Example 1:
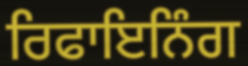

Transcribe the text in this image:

ਰਿਫਾਇਨਿੰਗ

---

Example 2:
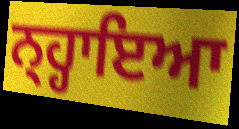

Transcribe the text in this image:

ਨ੍ਹ੍ਹਾਇਆ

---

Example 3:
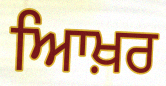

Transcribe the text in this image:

ਆਿਖ਼ਰ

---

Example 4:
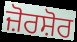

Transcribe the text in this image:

ਜ਼ੋਰਸ਼ੋਰ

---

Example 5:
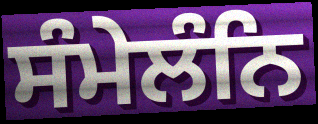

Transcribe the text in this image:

ਸੰਮੇਲੰਨਿ